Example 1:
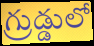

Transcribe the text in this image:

గ్రుడ్డులో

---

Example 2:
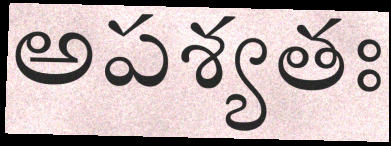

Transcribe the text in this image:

అపశ్యతః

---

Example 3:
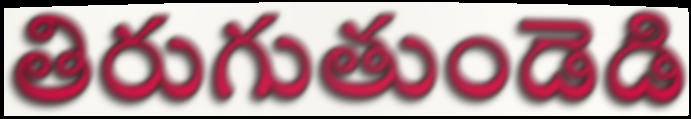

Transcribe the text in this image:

తిరుగుతుండెడి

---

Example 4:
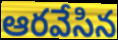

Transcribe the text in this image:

ఆరవేసిన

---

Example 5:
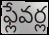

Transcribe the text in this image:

ఫ్లేవర్ల